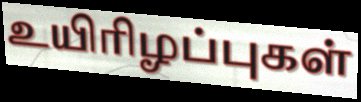
உயிரிழப்புகள்